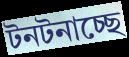
টনটনাচ্ছে